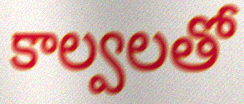
కాల్వలతో